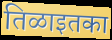
तिळाइतका